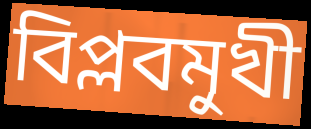
বিপ্লবমুখী